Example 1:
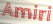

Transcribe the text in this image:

Amiri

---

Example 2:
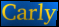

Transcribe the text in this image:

Carly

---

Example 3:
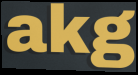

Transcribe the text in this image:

akg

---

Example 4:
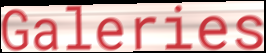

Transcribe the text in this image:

Galeries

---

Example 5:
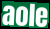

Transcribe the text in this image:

aole